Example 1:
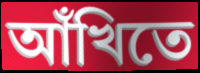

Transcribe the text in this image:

আঁখিতে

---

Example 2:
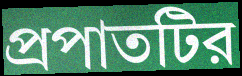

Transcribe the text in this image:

প্রপাতটির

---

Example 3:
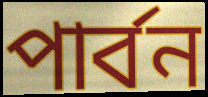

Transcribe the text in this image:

পার্বন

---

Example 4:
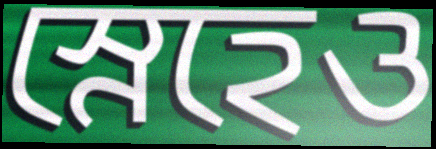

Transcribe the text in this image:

স্নেহেও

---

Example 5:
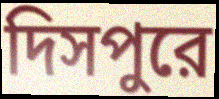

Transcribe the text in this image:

দিসপুরে